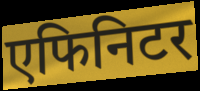
एफिनिटर